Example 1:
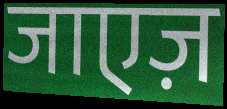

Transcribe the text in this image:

जाएज़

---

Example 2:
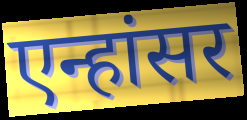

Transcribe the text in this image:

एन्हांसर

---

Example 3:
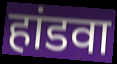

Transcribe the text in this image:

हांडवा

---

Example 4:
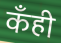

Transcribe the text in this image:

कँही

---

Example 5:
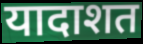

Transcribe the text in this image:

यादाशत